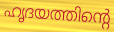
ഹൃദയത്തിന്റെ